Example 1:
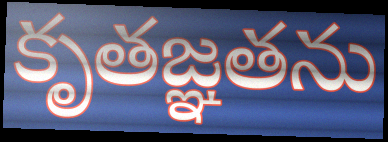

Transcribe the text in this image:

కృతజ్ఞతను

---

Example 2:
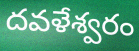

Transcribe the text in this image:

దవళేశ్వరం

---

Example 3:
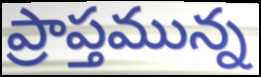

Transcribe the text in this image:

ప్రాప్తమున్న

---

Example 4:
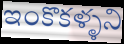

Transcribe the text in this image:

ఇంకొకళ్ళని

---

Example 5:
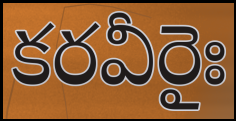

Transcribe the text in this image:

కరవీరైః